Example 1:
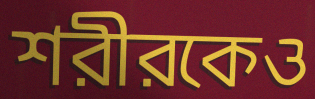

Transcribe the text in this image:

শরীরকেও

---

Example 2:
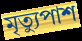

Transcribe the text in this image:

মৃত্যুপাশ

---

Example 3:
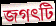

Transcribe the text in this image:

জগৎটি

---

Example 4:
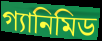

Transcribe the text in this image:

গ্যানিমিড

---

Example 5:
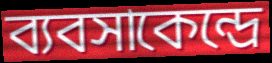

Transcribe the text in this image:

ব্যবসাকেন্দ্রে